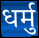
धर्मु